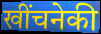
खींचनेकी